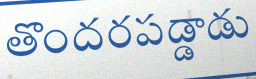
తొందరపడ్డాడు